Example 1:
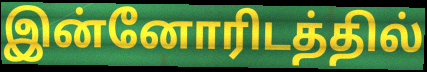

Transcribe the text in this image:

இன்னோரிடத்தில்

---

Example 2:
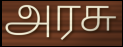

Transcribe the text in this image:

அரசு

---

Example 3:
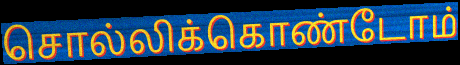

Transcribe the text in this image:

சொல்லிக்கொண்டோம்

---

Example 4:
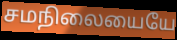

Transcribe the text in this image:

சமநிலையையே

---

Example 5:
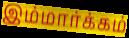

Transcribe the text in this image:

இம்மார்க்கம்